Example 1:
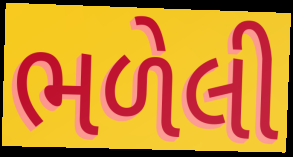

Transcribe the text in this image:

ભળેલી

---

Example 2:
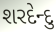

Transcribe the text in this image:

શરદેન્દુ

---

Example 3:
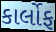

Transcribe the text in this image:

કાર્લોફ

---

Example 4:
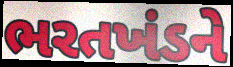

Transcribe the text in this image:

ભરતખંડને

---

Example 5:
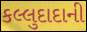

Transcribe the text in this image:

કલ્લુદાદાની